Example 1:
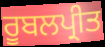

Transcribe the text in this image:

ਰੂਬਲਪ੍ਰੀਤ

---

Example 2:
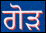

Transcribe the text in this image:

ਗੋੜ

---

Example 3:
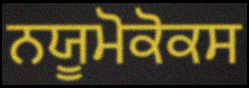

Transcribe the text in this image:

ਨਯੂਮੋਕੋਕਸ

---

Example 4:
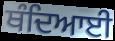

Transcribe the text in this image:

ਥੰਦਿਆਈ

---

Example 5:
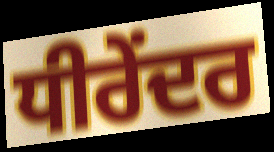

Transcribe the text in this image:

ਧੀਰੇਂਦਰ